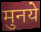
मुनये